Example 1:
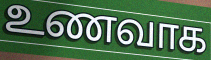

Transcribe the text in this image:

உணவாக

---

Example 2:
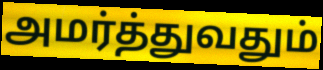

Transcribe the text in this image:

அமர்த்துவதும்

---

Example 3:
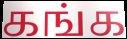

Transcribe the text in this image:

கங்க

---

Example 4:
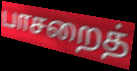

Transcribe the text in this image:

பாசறைத்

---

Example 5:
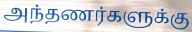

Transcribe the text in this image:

அந்தணர்களுக்கு